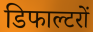
डिफाल्टरों